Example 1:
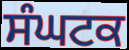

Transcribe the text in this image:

ਸੰਘਟਕ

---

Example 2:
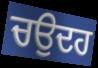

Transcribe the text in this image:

ਚਉਦਹ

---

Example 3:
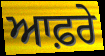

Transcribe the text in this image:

ਆਫ਼ਰੇ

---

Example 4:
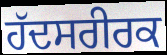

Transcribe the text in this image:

ਹੱਦਸਰੀਰਕ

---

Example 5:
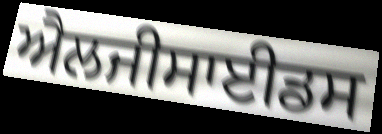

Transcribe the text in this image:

ਐਲਜੀਸਾਈਡਸ